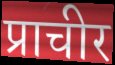
प्राचीर